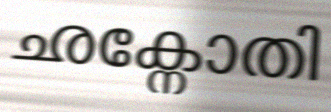
ഛക്നോതി